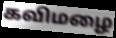
கவிமழை